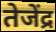
तेजेंद्र